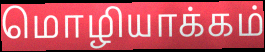
மொழியாக்கம்